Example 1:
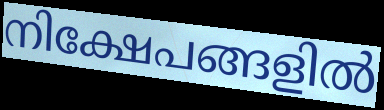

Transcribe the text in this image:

നിക്ഷേപങ്ങളിൽ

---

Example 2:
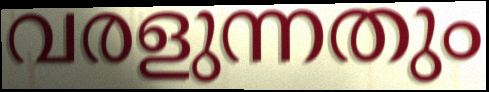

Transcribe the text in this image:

വരളുന്നതും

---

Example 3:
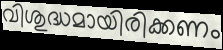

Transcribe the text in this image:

വിശുദ്ധമായിരിക്കണം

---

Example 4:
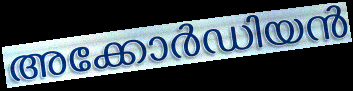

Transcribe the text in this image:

അക്കോർഡിയൻ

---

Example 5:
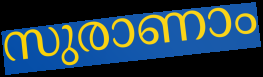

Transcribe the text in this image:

സുരാണാം